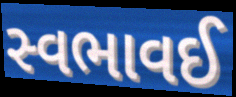
સ્વભાવઈ